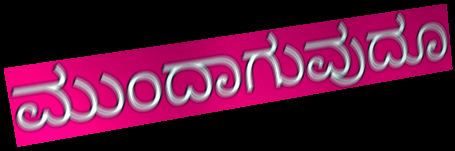
ಮುಂದಾಗುವುದೂ